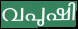
വപുഷി